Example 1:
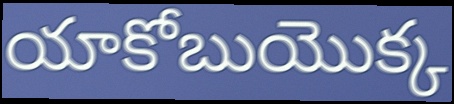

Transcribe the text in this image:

యాకోబుయొక్క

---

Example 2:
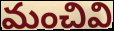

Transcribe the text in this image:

మంచివి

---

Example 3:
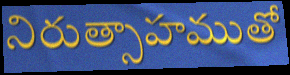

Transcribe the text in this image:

నిరుత్సాహముతో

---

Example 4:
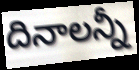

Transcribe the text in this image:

దినాలన్నీ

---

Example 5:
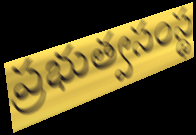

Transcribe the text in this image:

ప్రభుత్వసంస్థ